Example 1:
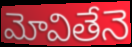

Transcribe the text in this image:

మోవితేనె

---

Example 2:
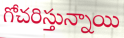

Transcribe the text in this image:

గోచరిస్తున్నాయి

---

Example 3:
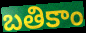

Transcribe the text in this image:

బతికాం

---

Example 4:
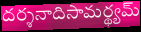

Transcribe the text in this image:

దర్శనాదిసామర్థ్యమ్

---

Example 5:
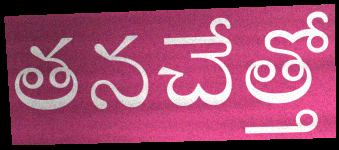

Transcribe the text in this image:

తనచేత్తో